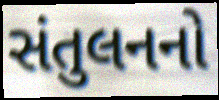
સંતુલનનો